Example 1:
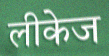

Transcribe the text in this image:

लीकेज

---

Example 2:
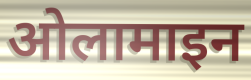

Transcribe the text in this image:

ओलामाइन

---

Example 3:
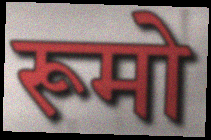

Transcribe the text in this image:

रूमो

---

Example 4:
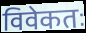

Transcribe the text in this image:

विवेकतः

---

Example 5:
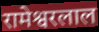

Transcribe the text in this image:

रामेश्वरलाल